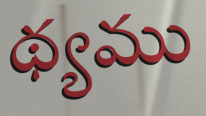
థ్యము